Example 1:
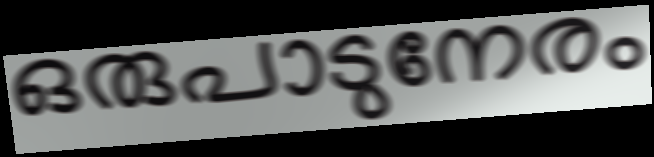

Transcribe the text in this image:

ഒരുപാടുനേരം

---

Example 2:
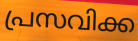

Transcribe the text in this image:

പ്രസവിക്ക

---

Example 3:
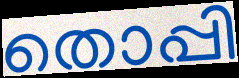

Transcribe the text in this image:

തൊപ്പി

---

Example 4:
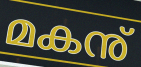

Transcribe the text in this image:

മകനു്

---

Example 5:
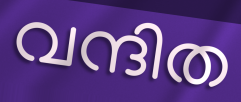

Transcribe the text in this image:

വന്ദിത